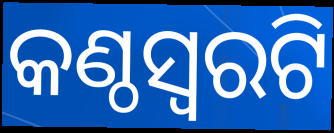
କଣ୍ଠସ୍ଵରଟି